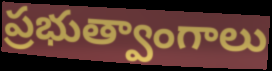
ప్రభుత్వాంగాలు